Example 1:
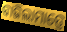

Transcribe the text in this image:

ବାଜିଲାମାତ୍ରେ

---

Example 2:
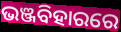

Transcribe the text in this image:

ଭଞ୍ଜବିହାରରେ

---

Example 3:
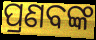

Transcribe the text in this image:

ପ୍ରଣବଙ୍କ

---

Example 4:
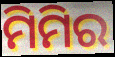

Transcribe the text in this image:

ମିମିର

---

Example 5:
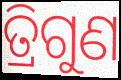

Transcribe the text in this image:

ତ୍ରିଗୁଣ